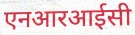
एनआरआईसी